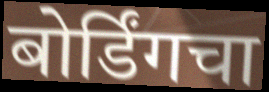
बोर्डिंगचा